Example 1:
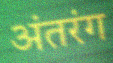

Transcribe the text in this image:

अंतरंग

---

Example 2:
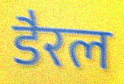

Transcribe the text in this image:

डैरल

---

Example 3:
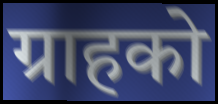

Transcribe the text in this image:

ग्राहको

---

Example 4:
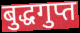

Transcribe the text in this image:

बुद्धगुप्त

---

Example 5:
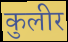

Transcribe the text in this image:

कुलीर